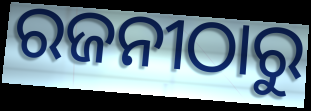
ରଜନୀଠାରୁ